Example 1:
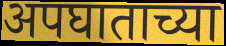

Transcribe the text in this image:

अपघाताच्या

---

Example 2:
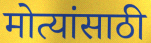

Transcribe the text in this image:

मोत्यांसाठी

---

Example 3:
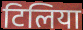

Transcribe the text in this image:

टिलिया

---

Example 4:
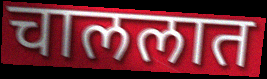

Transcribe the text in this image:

चाललात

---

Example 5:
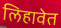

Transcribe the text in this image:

लिहावेत